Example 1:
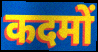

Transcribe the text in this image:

कदमों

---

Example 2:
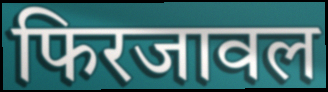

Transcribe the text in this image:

फिरजावल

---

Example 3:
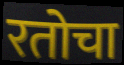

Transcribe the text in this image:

रतोचा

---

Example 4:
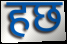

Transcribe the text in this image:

हछ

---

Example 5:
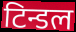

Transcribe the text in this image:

टिन्डल